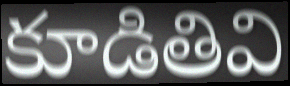
కూడితివి